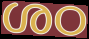
ശഠ